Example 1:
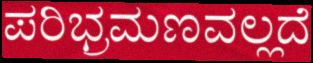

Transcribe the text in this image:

ಪರಿಭ್ರಮಣವಲ್ಲದೆ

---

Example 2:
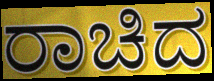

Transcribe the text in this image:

ರಾಚಿದ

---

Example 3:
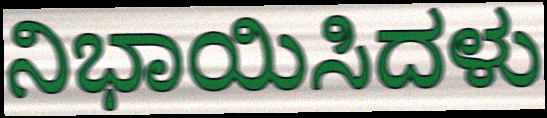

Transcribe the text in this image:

ನಿಭಾಯಿಸಿದಳು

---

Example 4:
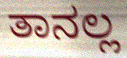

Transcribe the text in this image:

ತಾನಲ್ಲ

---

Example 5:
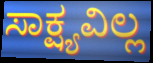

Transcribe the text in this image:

ಸಾಕ್ಷ್ಯವಿಲ್ಲ